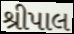
શ્રીપાલ